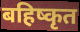
बहिष्कृत